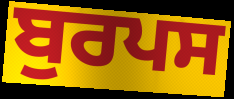
ਬੁਰਪਸ